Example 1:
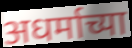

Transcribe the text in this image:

अधर्माच्या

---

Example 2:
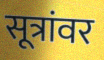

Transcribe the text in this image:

सूत्रांवर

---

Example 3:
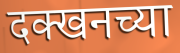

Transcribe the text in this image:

दक्खनच्या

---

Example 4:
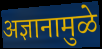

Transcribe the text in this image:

अज्ञानामुळे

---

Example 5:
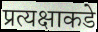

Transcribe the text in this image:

प्रत्यक्षाकडे